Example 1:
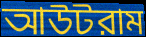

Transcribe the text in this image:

আউটরাম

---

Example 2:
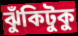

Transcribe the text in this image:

ঝুঁকিটুকু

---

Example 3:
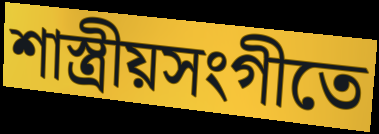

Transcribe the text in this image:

শাস্ত্রীয়সংগীতে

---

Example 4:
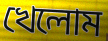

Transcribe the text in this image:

খেলোম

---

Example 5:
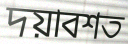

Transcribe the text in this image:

দয়াবশত